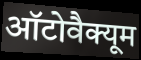
ऑटोवैक्यूम